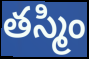
తస్మిం